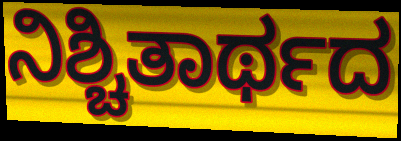
ನಿಶ್ಚಿತಾರ್ಥದ